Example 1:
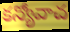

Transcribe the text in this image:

కన్యోవాచ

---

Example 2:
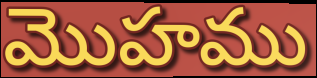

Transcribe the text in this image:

మొహము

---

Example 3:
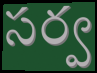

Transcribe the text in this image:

సర్వ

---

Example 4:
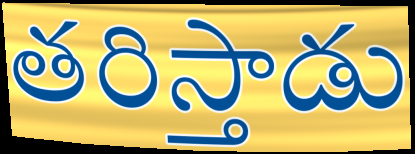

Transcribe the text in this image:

తరిస్తాడు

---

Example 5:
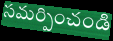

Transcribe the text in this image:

సమర్పించండి